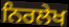
ਨਿਰਲੇਖ